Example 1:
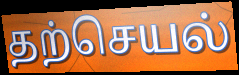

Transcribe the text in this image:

தற்செயல்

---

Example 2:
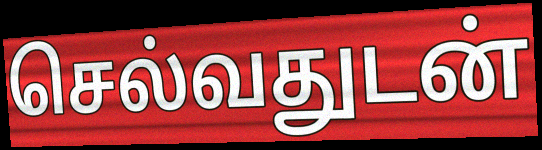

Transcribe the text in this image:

செல்வதுடன்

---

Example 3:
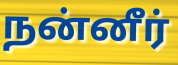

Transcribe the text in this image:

நன்னீர்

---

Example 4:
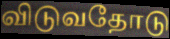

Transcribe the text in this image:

விடுவதோடு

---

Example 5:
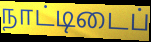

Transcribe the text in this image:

நாட்டிடைப்